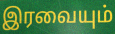
இரவையும்